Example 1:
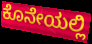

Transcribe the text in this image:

ಕೊನೇಯಲ್ಲಿ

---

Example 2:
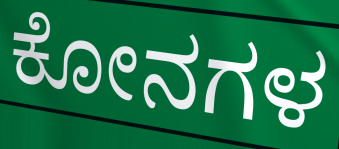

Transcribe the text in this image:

ಕೋನಗಳ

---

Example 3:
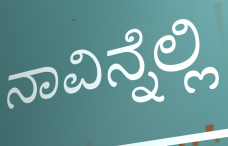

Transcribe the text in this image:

ನಾವಿನ್ನೆಲ್ಲಿ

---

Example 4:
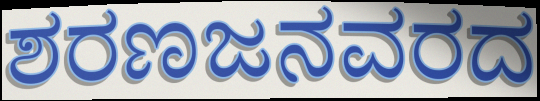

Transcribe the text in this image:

ಶರಣಜನವರದ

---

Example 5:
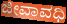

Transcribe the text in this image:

ಜೀವಾವಧಿ